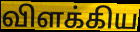
விளக்கிய